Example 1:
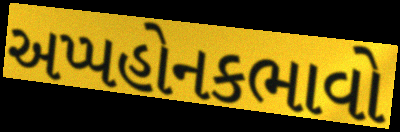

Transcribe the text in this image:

અપ્પહોનકભાવો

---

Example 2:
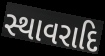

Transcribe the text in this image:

સ્થાવરાદિ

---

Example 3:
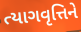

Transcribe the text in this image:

ત્યાગવૃત્તિને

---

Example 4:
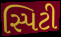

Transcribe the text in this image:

સ્પિટી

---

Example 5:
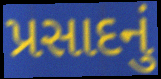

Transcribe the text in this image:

પ્રસાદનું